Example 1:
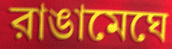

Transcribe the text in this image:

রাঙামেঘে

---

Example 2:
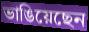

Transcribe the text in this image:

ভাঙিয়েছেন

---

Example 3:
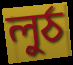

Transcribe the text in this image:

লুঠ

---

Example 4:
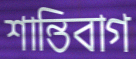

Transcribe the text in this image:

শান্তিবাগ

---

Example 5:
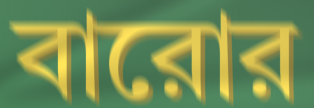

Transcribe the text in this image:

বারোর